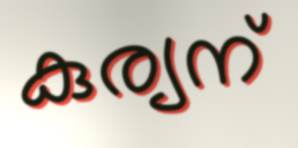
കുര്യന്